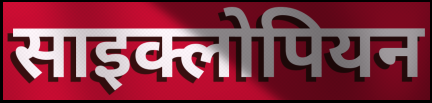
साइक्लोपियन